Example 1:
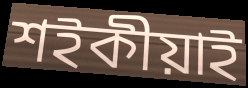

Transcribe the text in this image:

শইকীয়াই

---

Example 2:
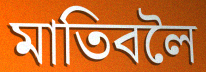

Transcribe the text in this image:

মাতিবলৈ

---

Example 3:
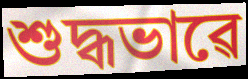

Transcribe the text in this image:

শুদ্ধভাৱে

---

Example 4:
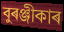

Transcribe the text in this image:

বুৰঞ্জীকাৰ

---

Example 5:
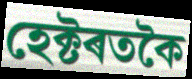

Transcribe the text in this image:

হেক্টৰতকৈ